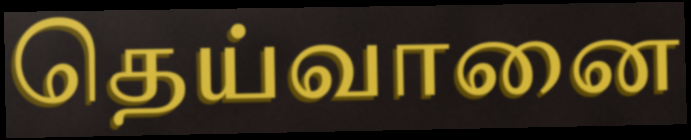
தெய்வானை